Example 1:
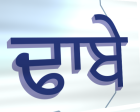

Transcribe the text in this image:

ਢਾਬੇ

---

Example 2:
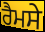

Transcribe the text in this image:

ਰੈਮਸੇ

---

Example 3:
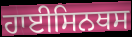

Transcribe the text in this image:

ਹਾਈਸਿਨਥਸ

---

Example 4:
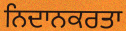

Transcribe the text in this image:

ਨਿਦਾਨਕਰਤਾ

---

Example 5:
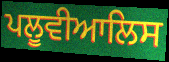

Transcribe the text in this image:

ਪਲੂਵੀਆਲਿਸ